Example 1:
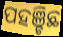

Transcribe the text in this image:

ପହଞ୍ଚିଛ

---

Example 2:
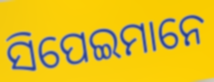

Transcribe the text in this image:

ସିପେଇମାନେ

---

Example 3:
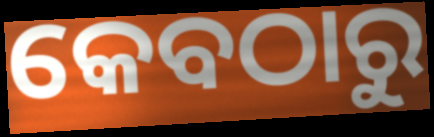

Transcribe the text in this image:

କେବଠାରୁ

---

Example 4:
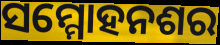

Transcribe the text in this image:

ସମ୍ମୋହନଶର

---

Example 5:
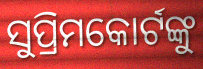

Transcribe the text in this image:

ସୁପ୍ରିମକୋର୍ଟଙ୍କୁ